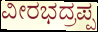
ವೀರಭದ್ರಪ್ಪ